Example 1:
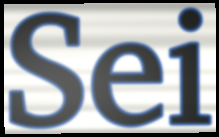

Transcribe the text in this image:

Sei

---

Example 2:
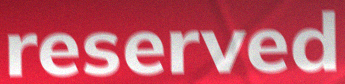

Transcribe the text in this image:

reserved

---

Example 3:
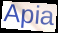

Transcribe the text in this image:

Apia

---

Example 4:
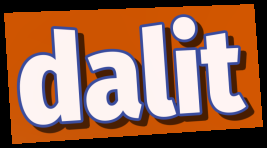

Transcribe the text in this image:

dalit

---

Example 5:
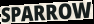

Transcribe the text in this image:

SPARROW